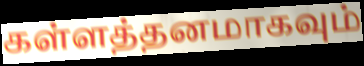
கள்ளத்தனமாகவும்